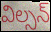
విల్సన్